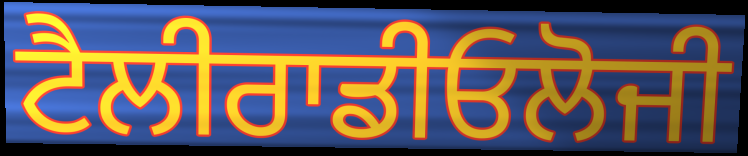
ਟੈਲੀਰਾਡੀਓਲੋਜੀ